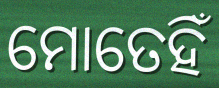
ମୋତେହିଁ